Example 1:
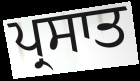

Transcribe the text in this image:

ਪ੍ਰਸਾਤ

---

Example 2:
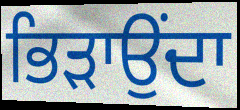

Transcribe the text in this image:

ਭਿੜਾਉਂਦਾ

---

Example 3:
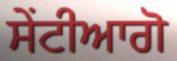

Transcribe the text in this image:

ਸੇਂਟੀਆਗੋ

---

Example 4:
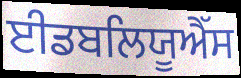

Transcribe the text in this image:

ਈਡਬਲਿਯੂਐੱਸ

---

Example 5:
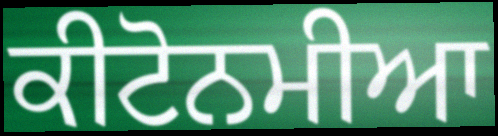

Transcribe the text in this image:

ਕੀਟੋਨਮੀਆ